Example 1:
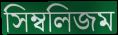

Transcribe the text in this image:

সিম্বলিজম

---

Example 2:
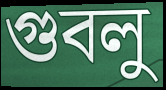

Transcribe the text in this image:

গুবলু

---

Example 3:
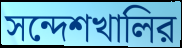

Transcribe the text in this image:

সন্দেশখালির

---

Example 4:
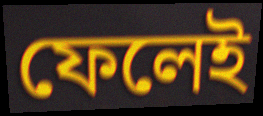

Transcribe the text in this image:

ফেলেই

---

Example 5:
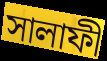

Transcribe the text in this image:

সালাফী